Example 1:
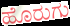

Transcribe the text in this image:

ಹೊರುಗು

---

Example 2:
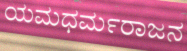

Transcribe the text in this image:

ಯಮಧರ್ಮರಾಜನ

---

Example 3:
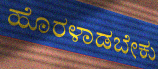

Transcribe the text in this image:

ಹೊರಳಾಡಬೇಕು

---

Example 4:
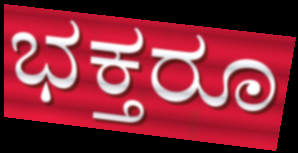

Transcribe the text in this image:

ಭಕ್ತರೂ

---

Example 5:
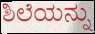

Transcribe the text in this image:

ಶಿಲೆಯನ್ನು